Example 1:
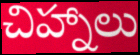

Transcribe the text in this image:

చిహ్నాలు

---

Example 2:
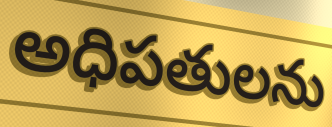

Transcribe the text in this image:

అధిపతులను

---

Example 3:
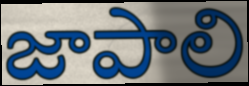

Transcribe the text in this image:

జాపాలి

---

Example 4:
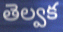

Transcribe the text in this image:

తెల్వక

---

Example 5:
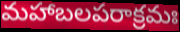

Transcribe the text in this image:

మహాబలపరాక్రమః